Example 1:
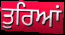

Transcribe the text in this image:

ਤੁਰਿਆਂ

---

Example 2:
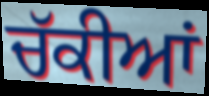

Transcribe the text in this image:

ਚੱਕੀਆਂ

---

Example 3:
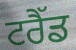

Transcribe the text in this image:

ਟਰੈੱਡ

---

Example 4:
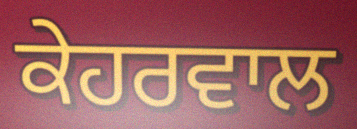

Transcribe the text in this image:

ਕੇਹਰਵਾਲ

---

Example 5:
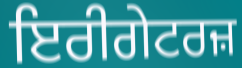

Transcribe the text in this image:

ਇਰੀਗੇਟਰਜ਼